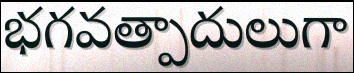
భగవత్పాదులుగా